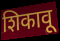
शिकावू